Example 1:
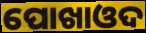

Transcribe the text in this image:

ପୋଖାଓଦ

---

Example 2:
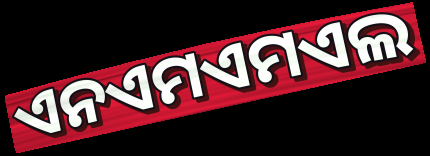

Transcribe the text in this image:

ଏନଏମଏମଏଲ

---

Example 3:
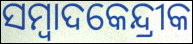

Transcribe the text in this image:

ସମ୍ୱାଦକେନ୍ଦ୍ରୀକ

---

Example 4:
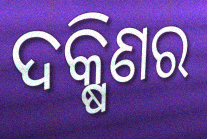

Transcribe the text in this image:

ଦକ୍ଷିଣର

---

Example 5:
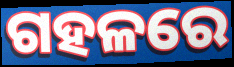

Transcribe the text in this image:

ଗହଳରେ